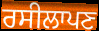
ਰਸੀਲਾਪਣ